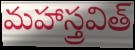
మహాస్త్రవిత్